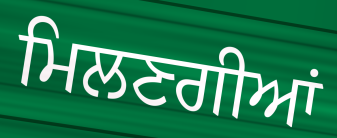
ਮਿਲਣਗੀਆਂ